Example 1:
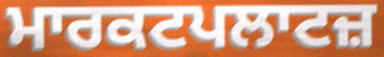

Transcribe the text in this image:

ਮਾਰਕਟਪਲਾਟਜ਼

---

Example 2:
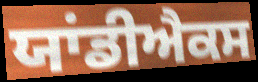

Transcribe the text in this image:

ਯਾਂਡੀਐਕਸ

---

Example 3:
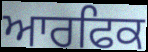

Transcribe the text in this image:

ਆਰਫਿਕ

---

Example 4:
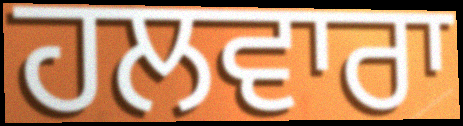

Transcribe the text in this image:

ਹਲਵਾਰਾ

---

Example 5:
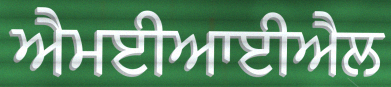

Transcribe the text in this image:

ਐਮਈਆਈਐਲ